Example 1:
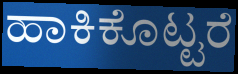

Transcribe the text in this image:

ಹಾಕಿಕೊಟ್ಟರೆ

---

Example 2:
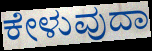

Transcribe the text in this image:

ಕೇಳುವುದಾ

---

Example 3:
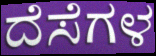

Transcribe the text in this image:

ದೆಸೆಗಳ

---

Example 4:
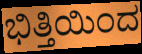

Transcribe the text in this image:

ಭಿತ್ತಿಯಿಂದ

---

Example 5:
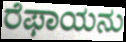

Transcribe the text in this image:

ರೆಫಾಯನು